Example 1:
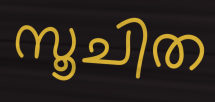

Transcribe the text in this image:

സൂചിത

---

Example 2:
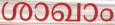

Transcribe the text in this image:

ശാഖാം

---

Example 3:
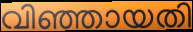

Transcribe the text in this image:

വിഞ്ഞായതി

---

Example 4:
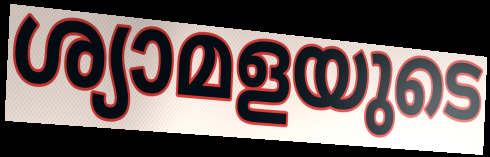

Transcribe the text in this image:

ശ്യാമളയുടെ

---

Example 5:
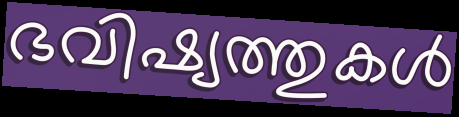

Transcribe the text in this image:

ഭവിഷ്യത്തുകൾ